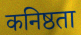
कनिष्ठता